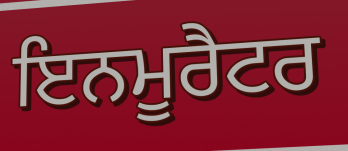
ਇਨਮੂਰੈਟਰ